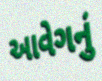
આવેગનું